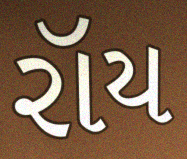
રૉય